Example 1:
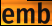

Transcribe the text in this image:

emb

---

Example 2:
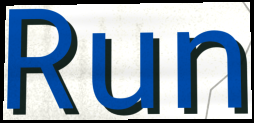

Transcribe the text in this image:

Run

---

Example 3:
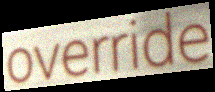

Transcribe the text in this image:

override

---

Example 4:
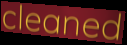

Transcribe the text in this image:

cleaned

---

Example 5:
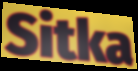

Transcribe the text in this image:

Sitka